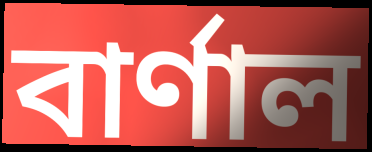
বাৰ্ণাল